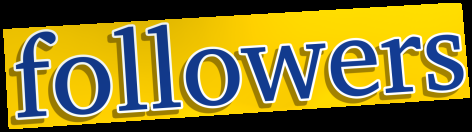
followers